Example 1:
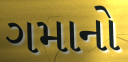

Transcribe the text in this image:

ગમાનો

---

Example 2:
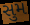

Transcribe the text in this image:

સુમ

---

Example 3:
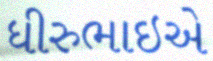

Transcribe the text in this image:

ધીરુભાઇએ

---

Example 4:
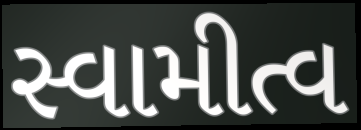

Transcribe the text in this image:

સ્વામીત્વ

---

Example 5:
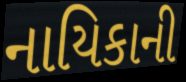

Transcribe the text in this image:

નાયિકાની